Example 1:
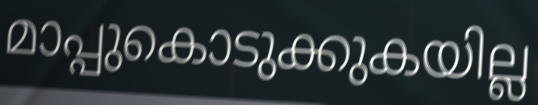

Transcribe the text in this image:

മാപ്പുകൊടുക്കുകയില്ല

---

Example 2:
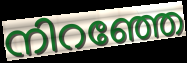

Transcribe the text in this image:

നിറഞ്ഞേ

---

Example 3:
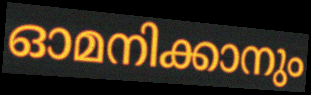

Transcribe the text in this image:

ഓമനിക്കാനും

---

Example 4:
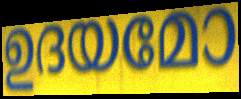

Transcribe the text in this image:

ഉദയമോ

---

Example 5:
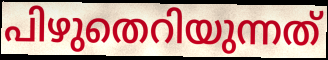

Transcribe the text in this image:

പിഴുതെറിയുന്നത്